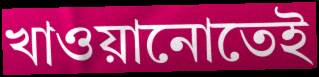
খাওয়ানোতেই